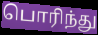
பொரிந்து